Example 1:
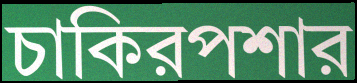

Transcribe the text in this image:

চাকিরপশার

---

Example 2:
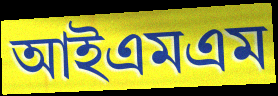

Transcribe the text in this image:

আইএমএম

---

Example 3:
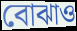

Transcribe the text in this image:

বোঝাও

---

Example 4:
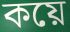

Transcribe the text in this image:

কয়ে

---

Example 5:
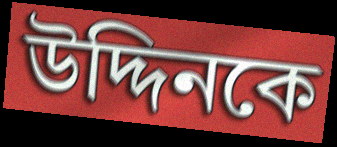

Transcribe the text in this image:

উদ্দিনকে